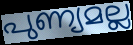
പുണ്യമല്ല